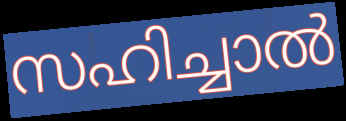
സഹിച്ചാൽ